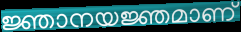
ജ്ഞാനയജ്ഞമാണ്